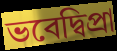
ভবেদ্বিপ্রা